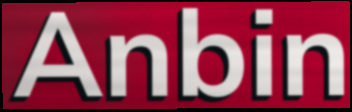
Anbin